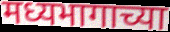
मध्यभागाच्या